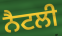
ਨੈਟਲੀ